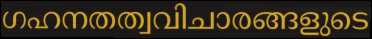
ഗഹനതത്വവിചാരങ്ങളുടെ